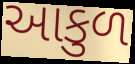
આકુળ